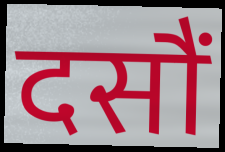
दसौं